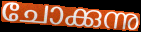
ചോക്കുന്നു